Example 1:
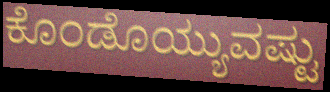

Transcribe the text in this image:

ಕೊಂಡೊಯ್ಯುವಷ್ಟು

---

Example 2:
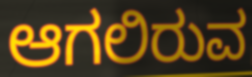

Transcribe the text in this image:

ಆಗಲಿರುವ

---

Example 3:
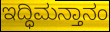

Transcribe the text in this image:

ಇದ್ಧಿಮನ್ತಾನಂ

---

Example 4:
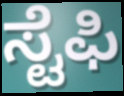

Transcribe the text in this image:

ಸ್ಟೆಫಿ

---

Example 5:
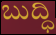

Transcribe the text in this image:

ಬುದ್ಧಿ